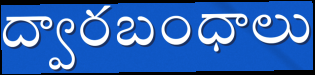
ద్వారబంధాలు